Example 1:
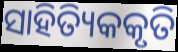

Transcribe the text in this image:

ସାହିତ୍ୟିକକୃତି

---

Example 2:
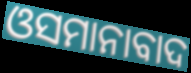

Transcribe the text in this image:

ଓସମାନାବାଦ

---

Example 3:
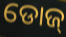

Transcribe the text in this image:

ଡୋଜ୍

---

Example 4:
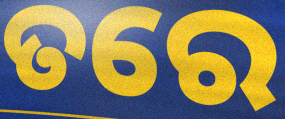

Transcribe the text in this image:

ତରେ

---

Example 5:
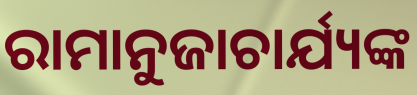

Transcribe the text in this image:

ରାମାନୁଜାଚାର୍ଯ୍ୟଙ୍କ